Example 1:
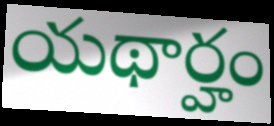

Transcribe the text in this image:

యథార్హం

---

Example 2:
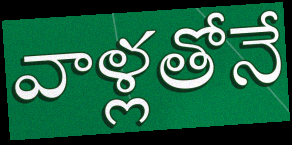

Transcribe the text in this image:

వాళ్లతోనే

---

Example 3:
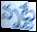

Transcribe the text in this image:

న్నట్టే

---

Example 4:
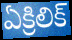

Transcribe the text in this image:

ఏక్రిలిక్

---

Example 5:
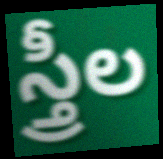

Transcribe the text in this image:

స్త్రీల